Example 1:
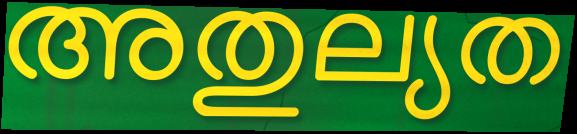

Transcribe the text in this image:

അതുല്യത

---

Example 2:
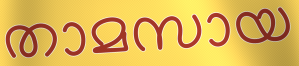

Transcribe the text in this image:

താമസായ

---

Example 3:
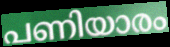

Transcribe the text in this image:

പണിയാരം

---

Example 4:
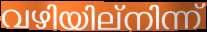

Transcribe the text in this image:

വഴിയില്നിന്ന്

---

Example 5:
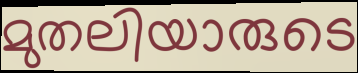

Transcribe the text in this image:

മുതലിയാരുടെ